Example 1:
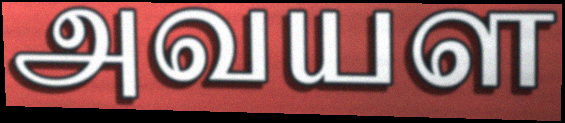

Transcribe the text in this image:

அவயள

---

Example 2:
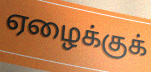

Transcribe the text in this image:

ஏழைக்குக்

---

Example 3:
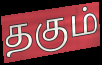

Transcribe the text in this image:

தகும்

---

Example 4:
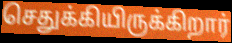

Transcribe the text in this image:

செதுக்கியிருக்கிறார்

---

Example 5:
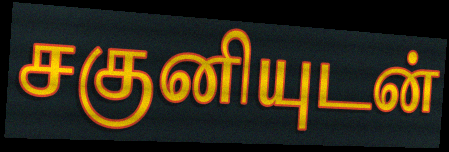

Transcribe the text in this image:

சகுனியுடன்